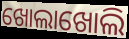
ଖୋଲାଖୋଲି